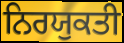
ਨਿਰਯੁਕਤੀ